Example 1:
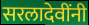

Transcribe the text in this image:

सरलादेवींनी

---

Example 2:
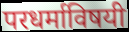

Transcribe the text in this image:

परधर्माविषयी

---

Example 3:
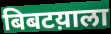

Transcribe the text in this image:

बिबटय़ाला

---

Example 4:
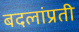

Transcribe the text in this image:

बदलांप्रती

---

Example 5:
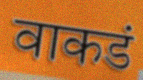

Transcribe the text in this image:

वाकडं